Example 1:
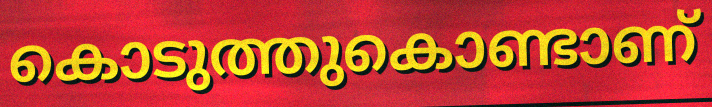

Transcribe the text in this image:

കൊടുത്തുകൊണ്ടാണ്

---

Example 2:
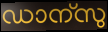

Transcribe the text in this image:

ഡാന്സു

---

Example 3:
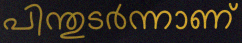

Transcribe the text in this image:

പിന്തുടർന്നാണ്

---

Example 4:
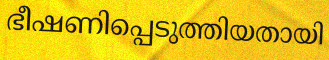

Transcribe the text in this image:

ഭീഷണിപ്പെടുത്തിയതായി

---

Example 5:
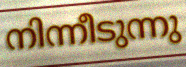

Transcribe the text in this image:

നിന്നീടുന്നു